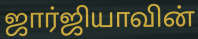
ஜார்ஜியாவின்